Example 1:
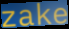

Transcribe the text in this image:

zake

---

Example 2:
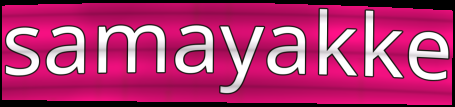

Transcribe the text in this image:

samayakke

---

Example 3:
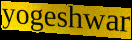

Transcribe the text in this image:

yogeshwar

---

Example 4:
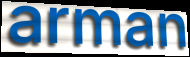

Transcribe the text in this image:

arman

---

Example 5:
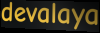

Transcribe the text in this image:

devalaya